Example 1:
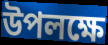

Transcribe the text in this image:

উপলক্ষে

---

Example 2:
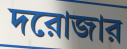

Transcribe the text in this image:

দরোজার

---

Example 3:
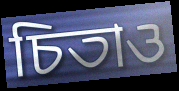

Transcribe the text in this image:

চিতাও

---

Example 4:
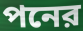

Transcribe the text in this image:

পনের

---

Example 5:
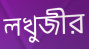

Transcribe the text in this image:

লখুজীর